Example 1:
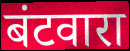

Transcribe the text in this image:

बंटवारा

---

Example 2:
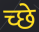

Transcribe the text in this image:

च्छे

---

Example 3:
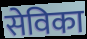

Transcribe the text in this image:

सेविका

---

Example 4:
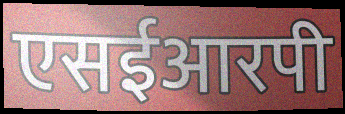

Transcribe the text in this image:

एसईआरपी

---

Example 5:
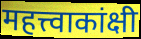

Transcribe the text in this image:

महत्त्वाकांक्षी